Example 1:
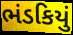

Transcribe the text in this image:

ભંડકિયું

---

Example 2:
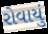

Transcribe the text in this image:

રોવાયું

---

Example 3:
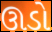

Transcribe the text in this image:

ઊડો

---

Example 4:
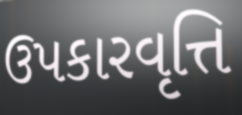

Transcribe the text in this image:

ઉપકારવૃત્તિ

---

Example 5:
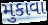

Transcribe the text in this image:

મુકાવા